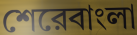
শেরেবাংলা